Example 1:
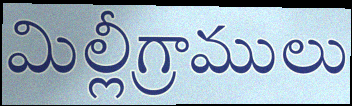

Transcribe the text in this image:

మిల్లీగ్రాములు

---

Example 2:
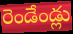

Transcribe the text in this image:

రెండేండ్లు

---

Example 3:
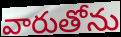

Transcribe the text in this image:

వారుతోను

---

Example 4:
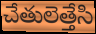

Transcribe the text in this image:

చేతులెత్తేసి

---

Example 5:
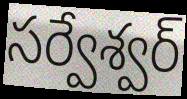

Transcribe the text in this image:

సర్వేశ్వర్